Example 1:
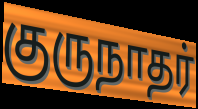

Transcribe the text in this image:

குருநாதர்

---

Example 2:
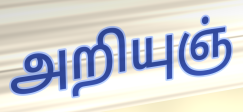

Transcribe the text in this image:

அறியுஞ்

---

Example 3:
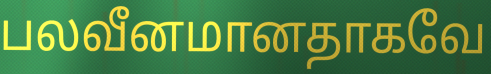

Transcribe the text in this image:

பலவீனமானதாகவே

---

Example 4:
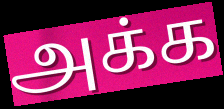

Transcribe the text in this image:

அக்க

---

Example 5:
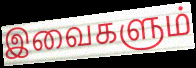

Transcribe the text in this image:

இவைகளும்